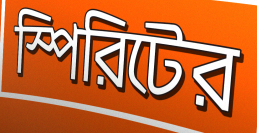
স্পিরিটের